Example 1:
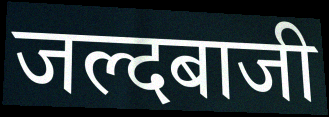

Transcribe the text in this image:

जल्दबाजी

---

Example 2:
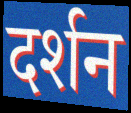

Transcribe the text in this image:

दर्शन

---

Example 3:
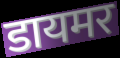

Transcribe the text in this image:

डायमर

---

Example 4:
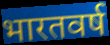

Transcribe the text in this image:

भारतवर्ष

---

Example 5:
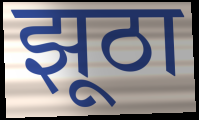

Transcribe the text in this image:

झूठा